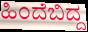
ಹಿಂದೆಬಿದ್ದ